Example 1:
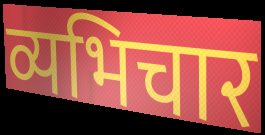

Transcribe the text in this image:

व्यभिचार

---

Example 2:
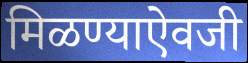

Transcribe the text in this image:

मिळण्याऐवजी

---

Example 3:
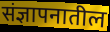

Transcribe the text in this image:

संज्ञापनातील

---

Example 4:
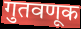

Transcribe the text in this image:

गुतवणूक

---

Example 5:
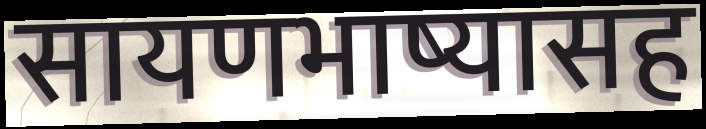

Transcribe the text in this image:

सायणभाष्यासह